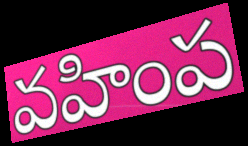
వహింప